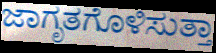
ಜಾಗೃತಗೊಳಿಸುತ್ತಾ